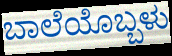
ಬಾಲೆಯೊಬ್ಬಳು